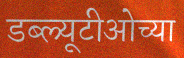
डब्ल्यूटीओच्या